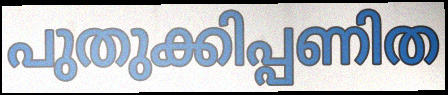
പുതുക്കിപ്പണിത